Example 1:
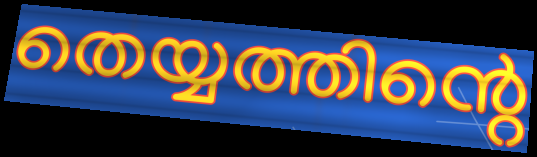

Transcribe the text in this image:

തെയ്യത്തിന്റെ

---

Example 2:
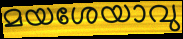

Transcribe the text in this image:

മയശേയാവു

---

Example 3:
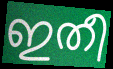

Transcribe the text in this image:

ഇതീ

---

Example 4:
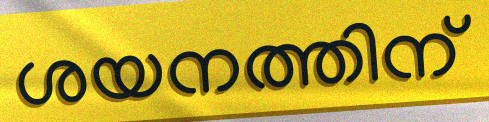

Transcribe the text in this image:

ശയനത്തിന്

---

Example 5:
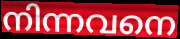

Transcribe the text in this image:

നിന്നവനെ